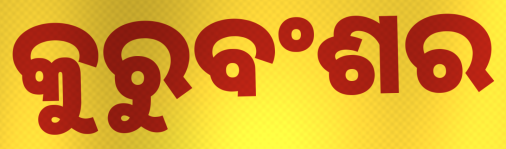
କୁରୁବଂଶର